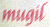
mugil